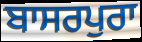
ਬਾਸਰਪੁਰਾ